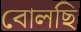
বোলছি